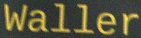
Waller